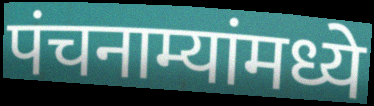
पंचनाम्यांमध्ये